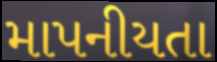
માપનીયતા